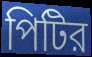
পিটির